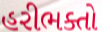
હરીભક્તો